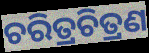
ଚରିତ୍ରଚିତ୍ରଣ